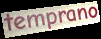
temprano